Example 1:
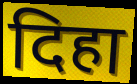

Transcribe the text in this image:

दिहा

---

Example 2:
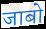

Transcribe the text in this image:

जाबो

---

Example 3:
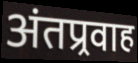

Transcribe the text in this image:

अंतप्र्रवाह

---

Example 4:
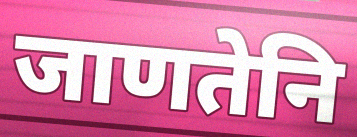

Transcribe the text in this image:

जाणतेनि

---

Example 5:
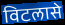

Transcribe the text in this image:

विटलासे